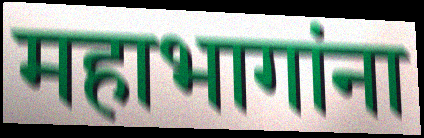
महाभागांना